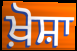
ਖ਼ੋਸ਼ਾ